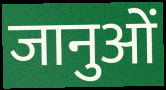
जानुओं